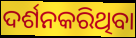
ଦର୍ଶନକରିଥିବା